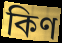
কিণ